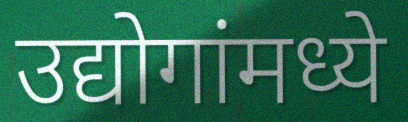
उद्योगांमध्ये